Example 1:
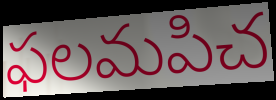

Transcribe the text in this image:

ఫలమపిచ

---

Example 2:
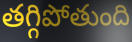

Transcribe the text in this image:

తగ్గిపోతుంది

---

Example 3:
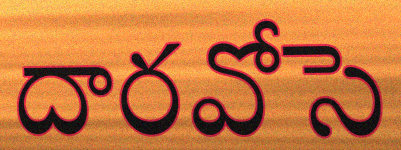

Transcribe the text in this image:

దారవోసె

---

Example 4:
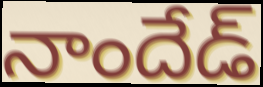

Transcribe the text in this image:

నాందేడ్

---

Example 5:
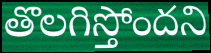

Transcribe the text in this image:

తొలగిస్తోందని